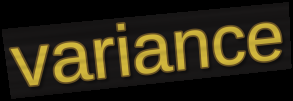
variance